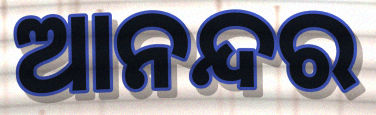
ଆନନ୍ଦର